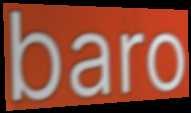
baro